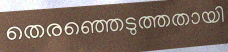
തെരഞ്ഞെടുത്തതായി